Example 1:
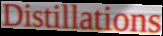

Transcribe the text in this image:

Distillations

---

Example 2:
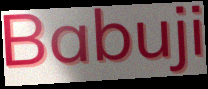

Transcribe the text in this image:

Babuji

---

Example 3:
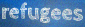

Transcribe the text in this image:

refugees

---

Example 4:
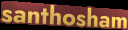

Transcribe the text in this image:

santhosham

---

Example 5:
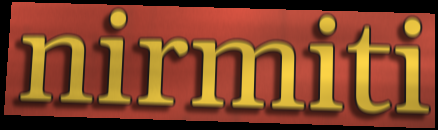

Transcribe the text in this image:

nirmiti